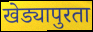
खेड्यापुरता